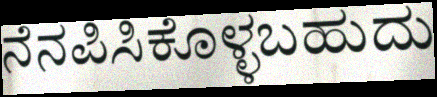
ನೆನಪಿಸಿಕೊಳ್ಳಬಹುದು